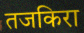
तजकिरा